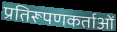
प्रतिरूपणकर्ताओं